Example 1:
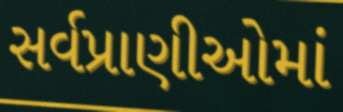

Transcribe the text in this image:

સર્વપ્રાણીઓમાં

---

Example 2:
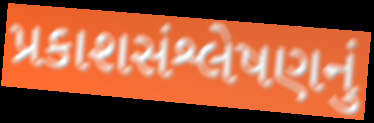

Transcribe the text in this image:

પ્રકાશસંશ્લેષણનું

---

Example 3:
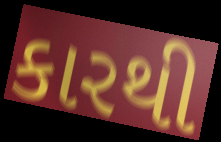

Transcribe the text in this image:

કારથી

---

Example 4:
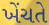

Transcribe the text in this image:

ખેંચતે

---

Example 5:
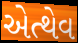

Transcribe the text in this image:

એત્થેવ